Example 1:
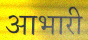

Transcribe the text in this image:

आभारी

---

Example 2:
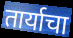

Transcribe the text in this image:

तार्याचा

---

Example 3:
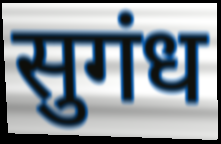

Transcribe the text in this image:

सुगंध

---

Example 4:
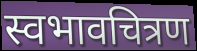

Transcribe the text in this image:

स्वभावचित्रण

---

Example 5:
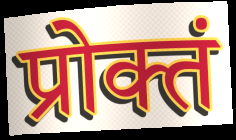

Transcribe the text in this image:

प्रोक्तं